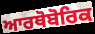
ਆਰਥੋਬੋਰਿਕ